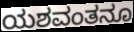
ಯಶವಂತನೂ